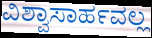
ವಿಶ್ವಾಸಾರ್ಹವಲ್ಲ